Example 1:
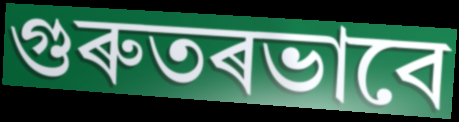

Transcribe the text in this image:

গুৰুতৰভাবে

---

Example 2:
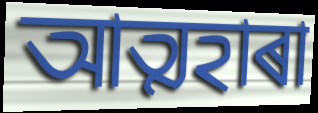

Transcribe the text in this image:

আত্মহাৰা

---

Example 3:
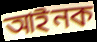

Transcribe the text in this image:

আইনক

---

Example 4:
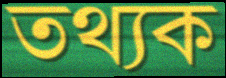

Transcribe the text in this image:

তথ্যক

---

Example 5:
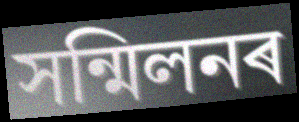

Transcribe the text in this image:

সন্মিলনৰ